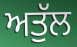
ਅਤੁੱਲ